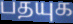
பதயுக